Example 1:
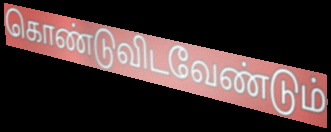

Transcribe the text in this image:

கொண்டுவிடவேண்டும்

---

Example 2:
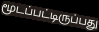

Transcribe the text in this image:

மூடப்பட்டிருப்பது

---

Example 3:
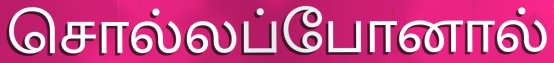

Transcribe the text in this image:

சொல்லப்போனால்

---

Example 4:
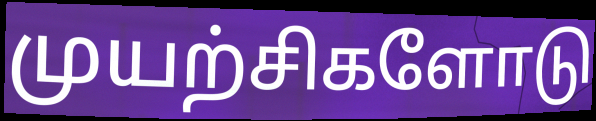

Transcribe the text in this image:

முயற்சிகளோடு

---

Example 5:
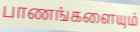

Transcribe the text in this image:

பாணங்களையும்